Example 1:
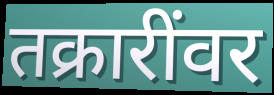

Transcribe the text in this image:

तक्रारींवर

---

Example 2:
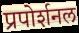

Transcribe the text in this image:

प्रपोर्शनल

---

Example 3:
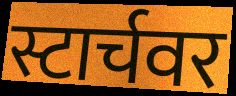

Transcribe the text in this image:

स्टार्चवर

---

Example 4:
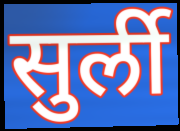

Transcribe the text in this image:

सुर्ली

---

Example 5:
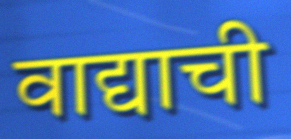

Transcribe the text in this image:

वाद्याची